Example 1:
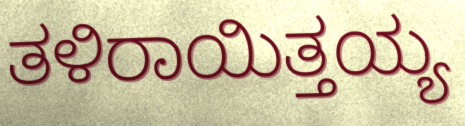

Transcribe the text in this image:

ತಳಿರಾಯಿತ್ತಯ್ಯ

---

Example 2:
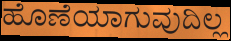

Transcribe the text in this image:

ಹೊಣೆಯಾಗುವುದಿಲ್ಲ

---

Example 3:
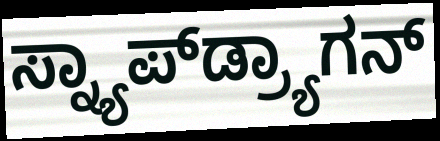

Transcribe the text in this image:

ಸ್ನ್ಯಾಪ್‌ಡ್ರ್ಯಾಗನ್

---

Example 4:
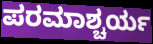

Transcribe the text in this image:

ಪರಮಾಶ್ಚರ್ಯ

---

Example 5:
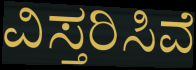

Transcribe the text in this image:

ವಿಸ್ತರಿಸಿವೆ